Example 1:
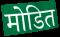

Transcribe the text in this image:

मोडित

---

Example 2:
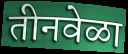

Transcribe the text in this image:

तीनवेळा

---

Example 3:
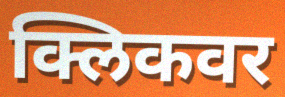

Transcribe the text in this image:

क्लिकवर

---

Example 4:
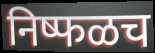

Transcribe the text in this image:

निष्फळच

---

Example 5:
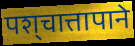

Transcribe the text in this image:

पश्चात्तापाने